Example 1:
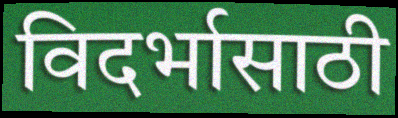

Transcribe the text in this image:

विदर्भासाठी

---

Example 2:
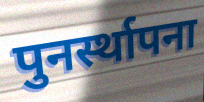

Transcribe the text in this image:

पुनर्स्थापना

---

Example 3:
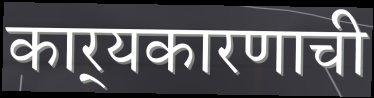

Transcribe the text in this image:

कार्यकारणाची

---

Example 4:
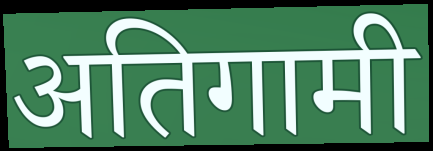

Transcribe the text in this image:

अतिगामी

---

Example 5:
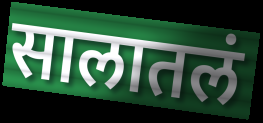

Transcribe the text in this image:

सालातलं